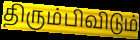
திரும்பிவிடும்